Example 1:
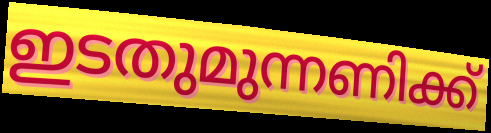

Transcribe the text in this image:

ഇടതുമുന്നണിക്ക്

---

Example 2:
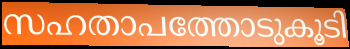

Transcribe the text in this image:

സഹതാപത്തോടുകൂടി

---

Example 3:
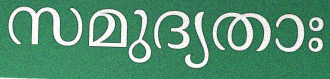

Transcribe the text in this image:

സമുദ്യതാഃ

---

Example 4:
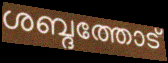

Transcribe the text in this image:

ശബ്ദത്തോട്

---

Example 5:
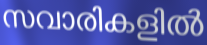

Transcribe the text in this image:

സവാരികളിൽ